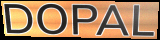
DOPAL